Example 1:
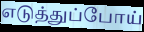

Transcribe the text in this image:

எடுத்துப்போய்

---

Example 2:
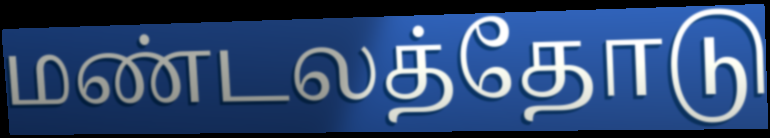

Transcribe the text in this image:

மண்டலத்தோடு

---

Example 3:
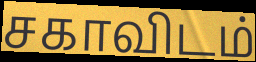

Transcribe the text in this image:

சகாவிடம்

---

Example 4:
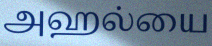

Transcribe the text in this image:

அஹல்யை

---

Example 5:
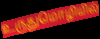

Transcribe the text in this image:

உருதுமொழியில்